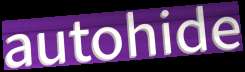
autohide